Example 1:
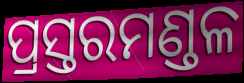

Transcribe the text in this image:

ପ୍ରସ୍ତରମଣ୍ଡଳ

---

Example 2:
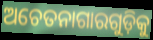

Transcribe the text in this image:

ଅଚେତନାଗାରଗୁଡ଼ିକୁ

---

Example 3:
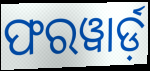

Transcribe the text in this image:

ଫରୱାର୍ଡ଼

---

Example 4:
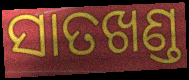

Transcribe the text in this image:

ସାତଖଣ୍ଡ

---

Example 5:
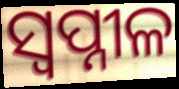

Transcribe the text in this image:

ସ୍ୱପ୍ନୀଳ